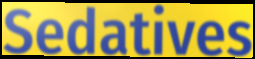
Sedatives